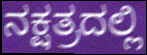
ನಕ್ಷತ್ರದಲ್ಲಿ